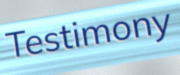
Testimony